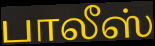
பாலீஸ்